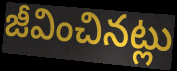
జీవించినట్లు